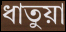
ধাতুয়া